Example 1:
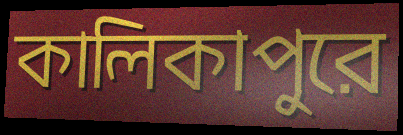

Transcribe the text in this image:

কালিকাপুরে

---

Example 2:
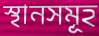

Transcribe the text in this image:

স্থানসমূহ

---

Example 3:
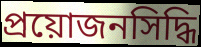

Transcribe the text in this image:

প্রয়োজনসিদ্ধি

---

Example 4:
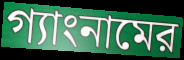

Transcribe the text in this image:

গ্যাংনামের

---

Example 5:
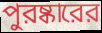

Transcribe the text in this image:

পুরষ্কারের